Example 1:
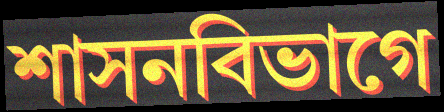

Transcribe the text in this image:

শাসনবিভাগে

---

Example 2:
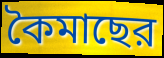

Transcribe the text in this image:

কৈমাছের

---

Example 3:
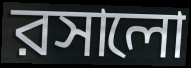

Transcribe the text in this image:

রসালো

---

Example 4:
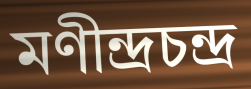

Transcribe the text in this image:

মণীন্দ্রচন্দ্র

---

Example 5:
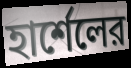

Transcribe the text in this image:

হার্শেলের